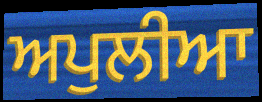
ਅਪੁਲੀਆ